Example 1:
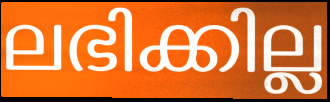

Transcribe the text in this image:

ലഭിക്കില്ല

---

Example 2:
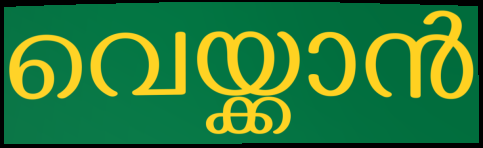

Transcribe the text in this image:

വെയ്ക്കാൻ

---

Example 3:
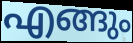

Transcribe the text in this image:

എങ്ങും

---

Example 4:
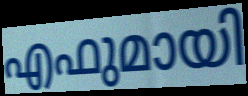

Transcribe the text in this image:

എഫുമായി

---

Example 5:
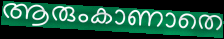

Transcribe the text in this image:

ആരുംകാണാതെ